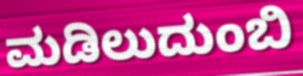
ಮಡಿಲುದುಂಬಿ